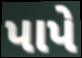
પાપે